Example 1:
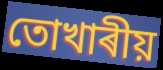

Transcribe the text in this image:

তোখাৰীয়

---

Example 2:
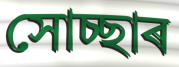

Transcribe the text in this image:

সোচ্ছাৰ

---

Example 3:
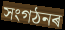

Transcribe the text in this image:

সংগঠনৰ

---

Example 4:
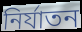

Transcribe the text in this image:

নিৰ্যাতন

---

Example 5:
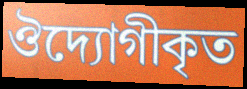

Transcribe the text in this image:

ঔদ্যোগীকৃত